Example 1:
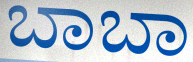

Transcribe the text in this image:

ಬಾಬಾ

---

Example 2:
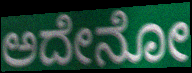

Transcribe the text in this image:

ಅದೇನೋ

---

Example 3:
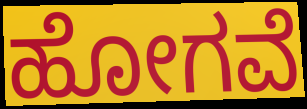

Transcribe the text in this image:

ಹೋಗವೆ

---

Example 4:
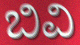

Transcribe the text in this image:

ಬಿವಿ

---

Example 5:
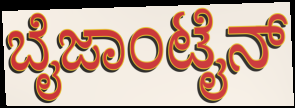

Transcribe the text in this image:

ಬೈಜಾಂಟೈನ್